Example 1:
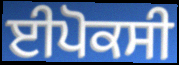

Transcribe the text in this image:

ਈਪੋਕਸੀ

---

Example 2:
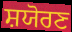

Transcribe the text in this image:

ਸ਼ਯੋਰਣ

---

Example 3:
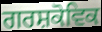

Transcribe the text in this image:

ਗਰਸ਼ਕੋਵਿਕ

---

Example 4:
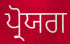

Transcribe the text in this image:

ਪ੍ਰੋਯਗ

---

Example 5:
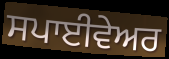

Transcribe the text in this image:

ਸਪਾਈਵੇਅਰ